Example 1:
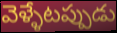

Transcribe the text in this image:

వెళ్ళేటప్పుడు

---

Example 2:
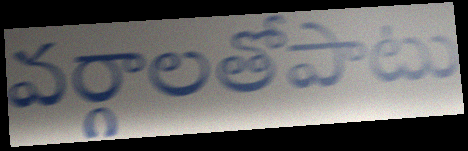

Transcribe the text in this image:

వర్గాలతోపాటు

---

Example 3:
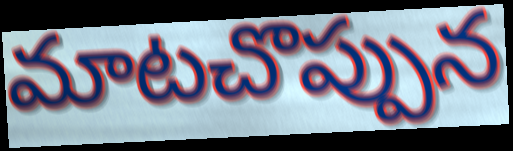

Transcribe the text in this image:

మాటచొప్పున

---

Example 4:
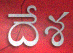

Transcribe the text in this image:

దేశ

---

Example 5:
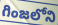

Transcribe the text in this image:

గింజలోని